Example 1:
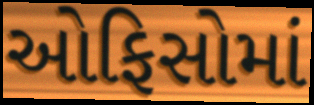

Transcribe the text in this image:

ઓફિસોમાં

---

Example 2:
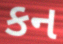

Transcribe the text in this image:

કન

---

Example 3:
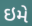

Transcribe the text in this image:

ઇમે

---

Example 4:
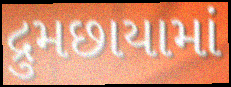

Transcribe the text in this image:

દ્રુમછાયામાં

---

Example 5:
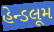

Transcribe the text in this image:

હેન્ડલૂમ